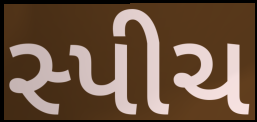
સ્પીચ